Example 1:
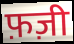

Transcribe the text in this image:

फ़ज़ी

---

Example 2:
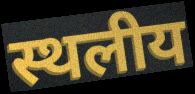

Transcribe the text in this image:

स्थलीय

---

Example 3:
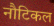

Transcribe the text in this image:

नौटिकल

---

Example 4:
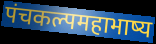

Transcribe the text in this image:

पंचकल्पमहाभाष्य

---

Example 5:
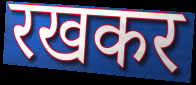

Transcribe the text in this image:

रखकर